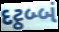
દટ્ઠબ્બં